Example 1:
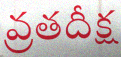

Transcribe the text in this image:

వ్రతదీక్ష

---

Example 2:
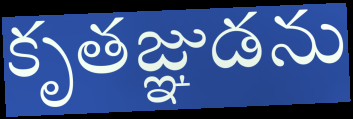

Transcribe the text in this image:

కృతజ్ఞుడను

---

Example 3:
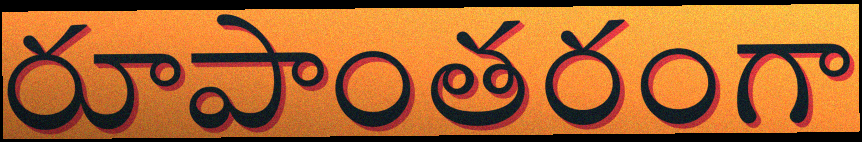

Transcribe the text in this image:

రూపాంతరంగా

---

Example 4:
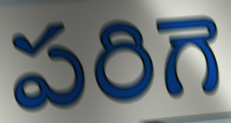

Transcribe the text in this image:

పరిగె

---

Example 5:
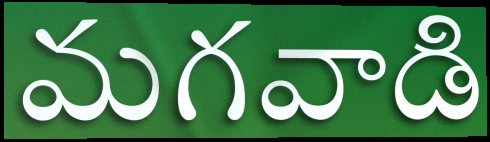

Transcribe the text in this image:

మగవాడి